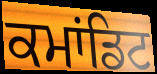
ਕਮਾਂਡਿਟ